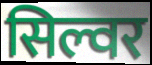
सिल्‍वर